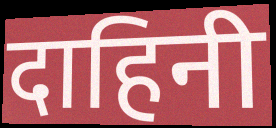
दाहिनी